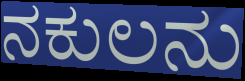
ನಕುಲನು